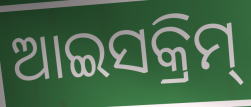
ଆଇସକ୍ରିମ୍